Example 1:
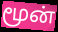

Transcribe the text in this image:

மூன்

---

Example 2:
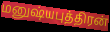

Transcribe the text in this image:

மனுஷ்யபுத்திரன்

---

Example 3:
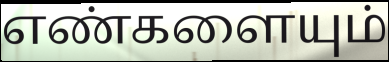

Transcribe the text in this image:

எண்களையும்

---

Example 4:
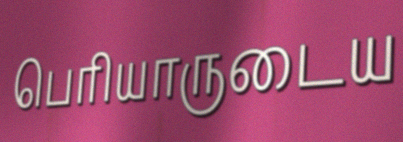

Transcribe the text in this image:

பெரியாருடைய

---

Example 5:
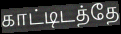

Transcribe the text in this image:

காட்டிடத்தே